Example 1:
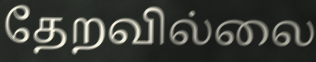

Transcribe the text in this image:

தேறவில்லை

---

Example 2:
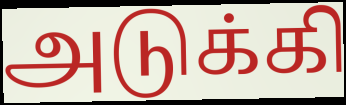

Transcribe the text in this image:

அடுக்கி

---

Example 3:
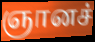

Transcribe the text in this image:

ஞானச்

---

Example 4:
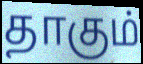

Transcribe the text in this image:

தாகும்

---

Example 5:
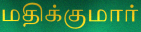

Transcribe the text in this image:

மதிக்குமார்